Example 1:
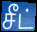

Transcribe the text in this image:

சீட்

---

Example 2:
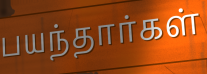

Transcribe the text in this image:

பயந்தார்கள்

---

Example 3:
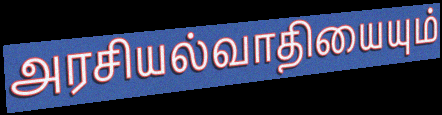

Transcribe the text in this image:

அரசியல்வாதியையும்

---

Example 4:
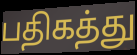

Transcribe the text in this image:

பதிகத்து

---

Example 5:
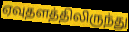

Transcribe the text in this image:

ஏவுதளத்திலிருந்து